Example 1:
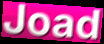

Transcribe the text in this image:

Joad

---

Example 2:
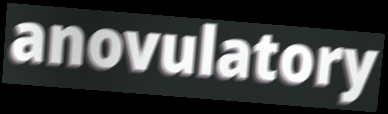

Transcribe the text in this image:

anovulatory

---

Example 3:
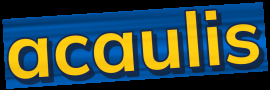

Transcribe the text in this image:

acaulis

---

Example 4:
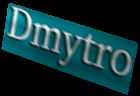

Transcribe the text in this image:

Dmytro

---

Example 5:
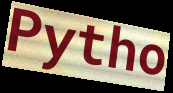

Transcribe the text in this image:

Pytho